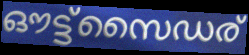
ഔട്ട്സൈഡര്